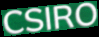
CSIRO